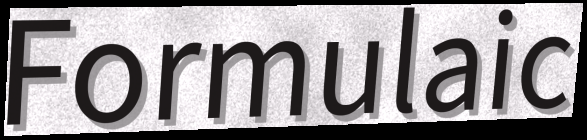
Formulaic